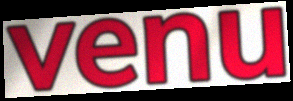
venu